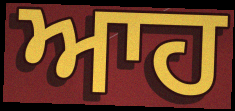
ਆਹ